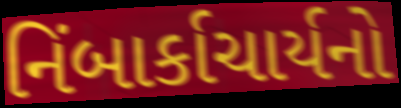
નિંબાર્કાચાર્યનો